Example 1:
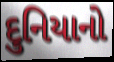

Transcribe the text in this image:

દુનિયાનો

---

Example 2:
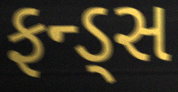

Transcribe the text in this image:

ફન્ડ્સ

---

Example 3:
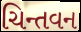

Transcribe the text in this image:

ચિન્તવન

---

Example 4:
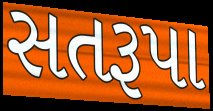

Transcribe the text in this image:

સતરૂપા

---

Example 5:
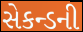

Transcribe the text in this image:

સેકન્ડની